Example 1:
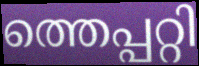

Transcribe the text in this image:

ത്തെപ്പറ്റി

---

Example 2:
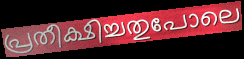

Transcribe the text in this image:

പ്രതീക്ഷിച്ചതുപോലെ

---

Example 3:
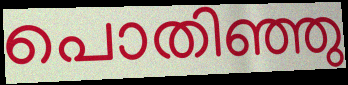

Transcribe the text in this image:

പൊതിഞ്ഞു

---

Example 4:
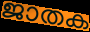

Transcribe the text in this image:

ജാതക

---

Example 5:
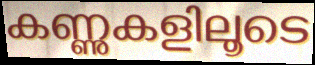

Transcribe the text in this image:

കണ്ണുകളിലൂടെ